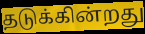
தடுக்கின்றது